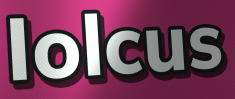
Iolcus